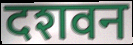
दशवन